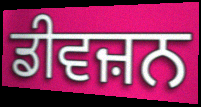
ਡੀਵਜ਼ਨ